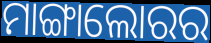
ମାଙ୍ଗାଲୋରର